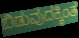
ಬಿಡುವುದಕ್ಕಿಂತ